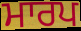
ਮਾਰਪ